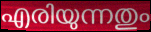
എരിയുന്നതും